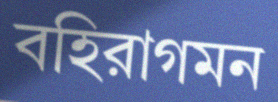
বহিরাগমন